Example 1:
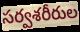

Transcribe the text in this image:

సర్వశరీరుల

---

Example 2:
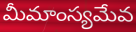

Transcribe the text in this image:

మీమాంస్యమేవ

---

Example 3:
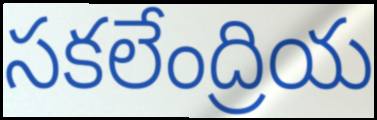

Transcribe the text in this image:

సకలేంద్రియ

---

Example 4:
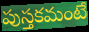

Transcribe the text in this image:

పుస్తకమంటే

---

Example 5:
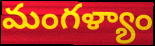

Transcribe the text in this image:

మంగళ్యాం